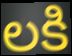
లకి